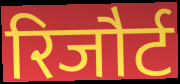
रिजौर्ट